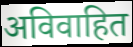
अविवाहित